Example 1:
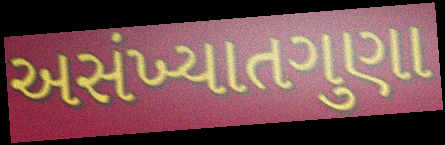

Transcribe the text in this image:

અસંખ્યાતગુણા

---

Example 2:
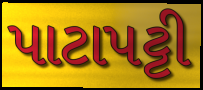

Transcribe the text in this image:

પાટાપટ્ટી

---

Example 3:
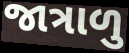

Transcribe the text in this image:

જાત્રાળુ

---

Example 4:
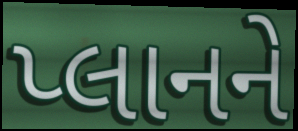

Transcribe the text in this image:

પ્લાનને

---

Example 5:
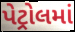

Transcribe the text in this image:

પેટ્રોલમાં